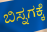
ಬಿಸ್ನಗಕ್ಕೆ